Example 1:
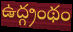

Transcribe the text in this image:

ఉద్గ్రంథం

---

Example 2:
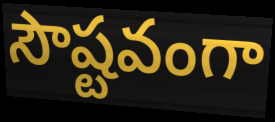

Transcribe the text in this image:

సౌష్టవంగా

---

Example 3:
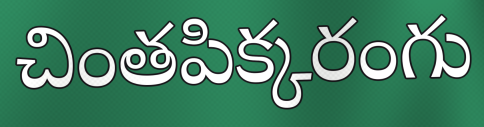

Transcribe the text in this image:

చింతపిక్కరంగు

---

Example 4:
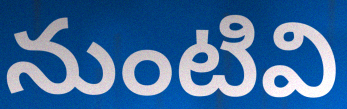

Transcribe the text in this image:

నుంటివి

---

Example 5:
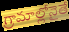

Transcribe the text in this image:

గ్రామాల్లోనైతే